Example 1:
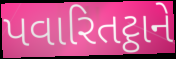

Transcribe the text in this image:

પવારિતટ્ઠાને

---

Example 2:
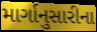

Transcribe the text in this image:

માર્ગાનુસારીના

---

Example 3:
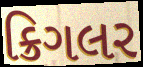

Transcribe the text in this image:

ક્રિગલર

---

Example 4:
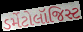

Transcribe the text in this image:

ડર્મેટોલૉજિસ્ટ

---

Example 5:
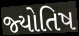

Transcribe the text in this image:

જ્‍યોતિષ